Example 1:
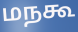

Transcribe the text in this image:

மநகூ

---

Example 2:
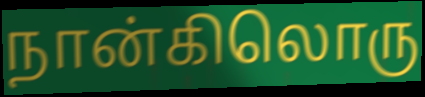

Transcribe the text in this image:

நான்கிலொரு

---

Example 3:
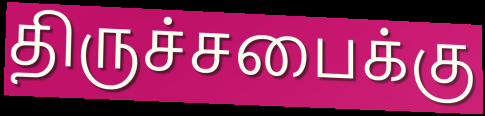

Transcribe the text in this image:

திருச்சபைக்கு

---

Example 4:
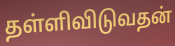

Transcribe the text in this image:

தள்ளிவிடுவதன்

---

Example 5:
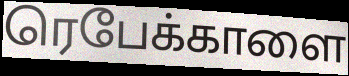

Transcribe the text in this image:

ரெபேக்காளை